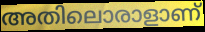
അതിലൊരാളാണ്